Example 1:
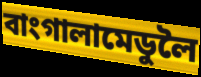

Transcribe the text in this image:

বাংগালামেডুলৈ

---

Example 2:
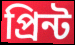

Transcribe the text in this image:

প্ৰিন্ট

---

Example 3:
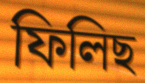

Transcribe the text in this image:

ফিলিছ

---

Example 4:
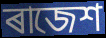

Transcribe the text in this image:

ৰাজেশ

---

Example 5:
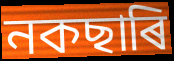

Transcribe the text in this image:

নকছাৰি